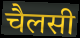
चैलसी